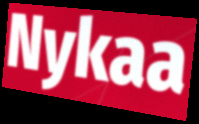
Nykaa